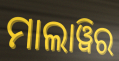
ମାଲାୱିର